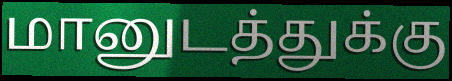
மானுடத்துக்கு